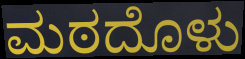
ಮಠದೊಳು